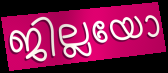
ജില്ലയോ